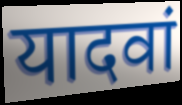
यादवां